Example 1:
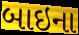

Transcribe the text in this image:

બાઇના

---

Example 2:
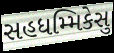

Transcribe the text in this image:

સહધમ્મિકેસુ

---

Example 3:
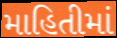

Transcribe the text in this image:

માહિતીમાં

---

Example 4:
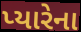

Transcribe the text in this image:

પ્યારેના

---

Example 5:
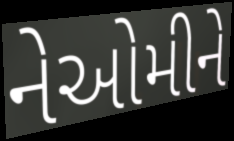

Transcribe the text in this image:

નેઓમીને